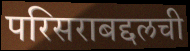
परिसराबद्दलची